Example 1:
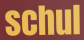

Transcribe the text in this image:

schul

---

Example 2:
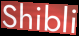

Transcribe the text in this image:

Shibli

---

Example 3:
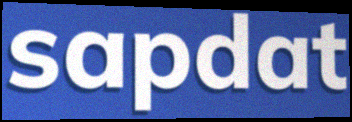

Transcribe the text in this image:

sapdat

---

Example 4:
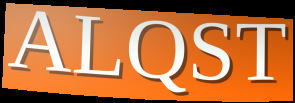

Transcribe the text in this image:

ALQST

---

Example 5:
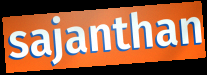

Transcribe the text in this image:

sajanthan